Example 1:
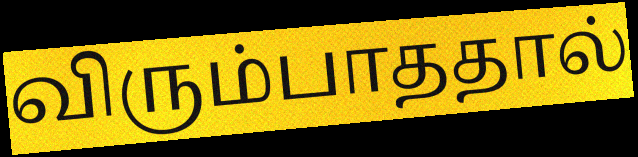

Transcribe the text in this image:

விரும்பாததால்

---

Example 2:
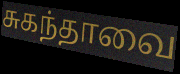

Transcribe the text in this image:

சுகந்தாவை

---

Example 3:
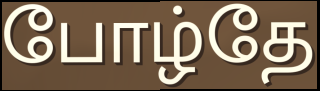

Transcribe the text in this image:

போழ்தே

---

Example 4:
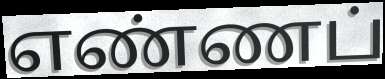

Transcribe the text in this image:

எண்ணப்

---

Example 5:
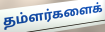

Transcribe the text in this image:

தம்ளர்களைக்